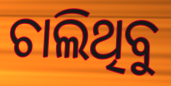
ଚାଲିଥିବୁ